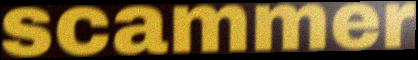
scammer